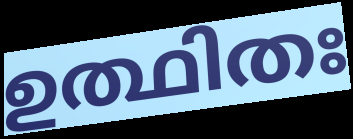
ഉത്ഥിതഃ